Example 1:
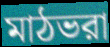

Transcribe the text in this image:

মাঠভরা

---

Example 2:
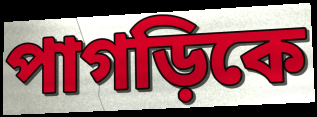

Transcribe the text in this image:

পাগড়িকে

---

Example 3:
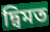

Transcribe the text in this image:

দ্বিমত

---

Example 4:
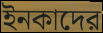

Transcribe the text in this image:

ইনকাদের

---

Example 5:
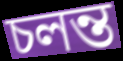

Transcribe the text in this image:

চলন্ত